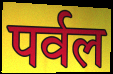
पर्वल